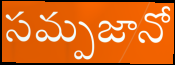
సమ్పజానో